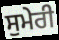
ਸੁਮੇਰੀ